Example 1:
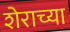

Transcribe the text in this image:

शेराच्या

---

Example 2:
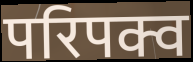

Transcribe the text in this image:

परिपक्व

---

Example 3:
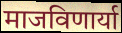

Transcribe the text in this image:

माजविणार्या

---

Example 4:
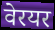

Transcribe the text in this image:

वेरयर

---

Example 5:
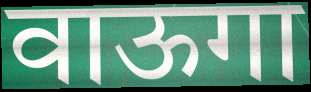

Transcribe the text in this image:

वाऊगा